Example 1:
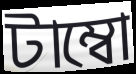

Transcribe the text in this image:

টাম্বো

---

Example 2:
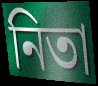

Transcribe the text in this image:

নিতা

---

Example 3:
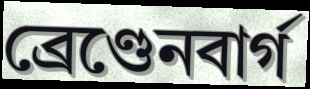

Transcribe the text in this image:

ব্ৰেণ্ডেনবাৰ্গ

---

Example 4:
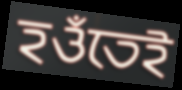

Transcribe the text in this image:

হওঁতেই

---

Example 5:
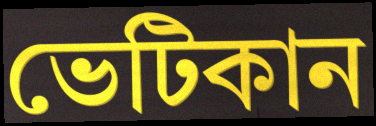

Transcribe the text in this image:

ভেটিকান